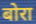
बोरा